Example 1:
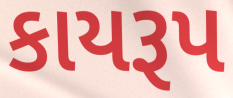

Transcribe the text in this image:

કાયરૂપ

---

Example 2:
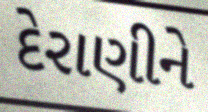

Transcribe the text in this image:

દેરાણીને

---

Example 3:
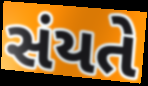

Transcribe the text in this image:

સંયતે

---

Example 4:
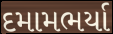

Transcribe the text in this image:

દમામભર્યા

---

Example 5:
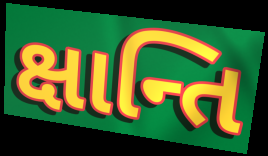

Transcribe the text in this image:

ક્ષાન્તિ